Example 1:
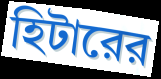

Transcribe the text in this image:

হিটারের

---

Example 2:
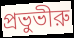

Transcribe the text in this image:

প্রভুভীরু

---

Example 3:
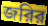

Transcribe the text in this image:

জরির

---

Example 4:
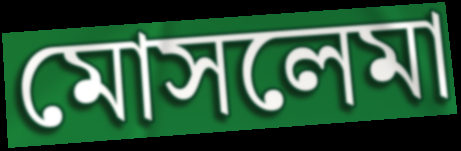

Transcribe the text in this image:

মোসলেমা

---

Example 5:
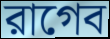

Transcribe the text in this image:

রাগেব